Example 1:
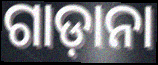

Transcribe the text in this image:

ଗାଡ଼ାନା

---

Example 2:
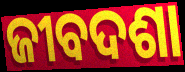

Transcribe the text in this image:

ଜୀବଦଶା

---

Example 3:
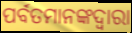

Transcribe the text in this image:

ପର୍ବତମାନଙ୍କଦ୍ଵାରା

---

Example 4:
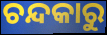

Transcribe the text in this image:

ଚନ୍ଦକାରୁ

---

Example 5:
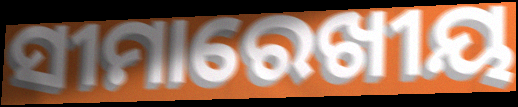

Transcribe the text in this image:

ସୀମାରେଖୀୟ